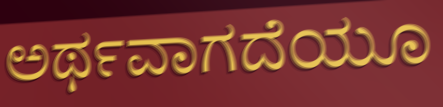
ಅರ್ಥವಾಗದೆಯೂ